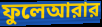
ফুলেআরার